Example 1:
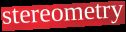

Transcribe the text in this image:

stereometry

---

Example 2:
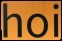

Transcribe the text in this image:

hoi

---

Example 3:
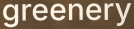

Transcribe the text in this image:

greenery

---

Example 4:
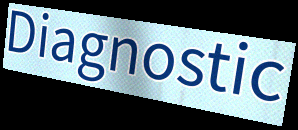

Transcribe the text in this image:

Diagnostic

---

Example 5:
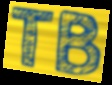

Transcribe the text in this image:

TB